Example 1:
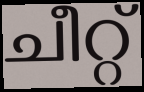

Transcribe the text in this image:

ചീറ്റ്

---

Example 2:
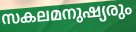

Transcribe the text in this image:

സകലമനുഷ്യരും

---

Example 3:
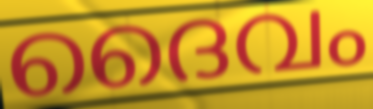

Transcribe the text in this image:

ദൈവം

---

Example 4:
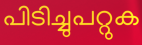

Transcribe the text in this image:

പിടിച്ചുപറ്റുക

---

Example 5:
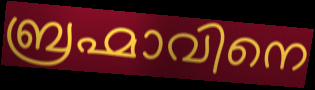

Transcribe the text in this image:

ബ്രഹ്മാവിനെ